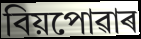
বিয়পোৱাৰ